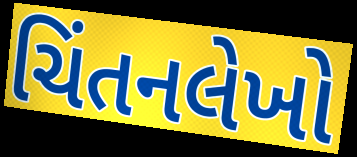
ચિંતનલેખો